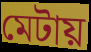
মেটায়